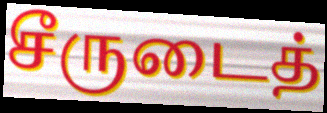
சீருடைத்